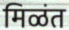
मिळंत